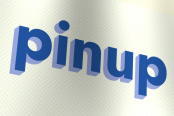
pinup